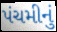
પંચમીનું